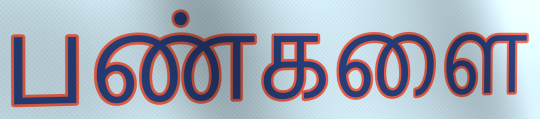
பண்களை